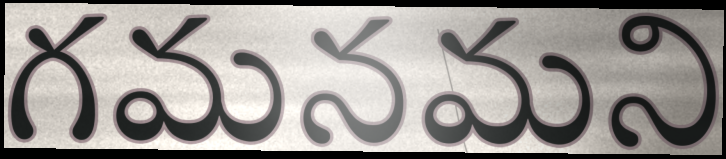
గమనమని